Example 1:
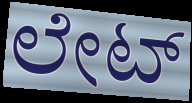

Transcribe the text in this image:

ಲೇಟ್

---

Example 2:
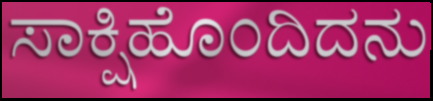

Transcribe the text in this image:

ಸಾಕ್ಷಿಹೊಂದಿದನು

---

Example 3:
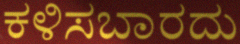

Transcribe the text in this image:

ಕಳಿಸಬಾರದು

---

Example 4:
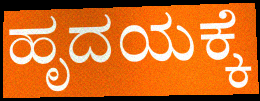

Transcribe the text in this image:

ಹೃದಯಕ್ಕೆ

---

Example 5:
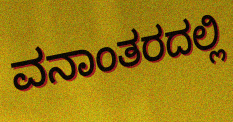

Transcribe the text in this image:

ವನಾಂತರದಲ್ಲಿ